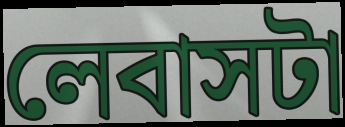
লেবাসটা